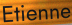
Etienne